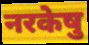
नरकेषु